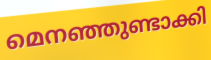
മെനഞ്ഞുണ്ടാക്കി